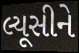
લ્યૂસીને